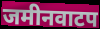
जमीनवाटप